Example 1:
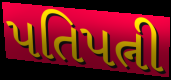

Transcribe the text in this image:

પતિપત્ની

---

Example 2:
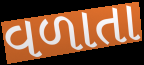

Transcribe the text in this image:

વળાતા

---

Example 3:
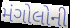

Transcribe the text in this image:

મંગોલોની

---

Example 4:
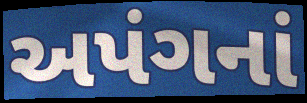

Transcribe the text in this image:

અપંગનાં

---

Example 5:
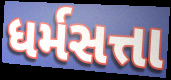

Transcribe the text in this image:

ધર્મસત્તા